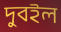
দুবইল